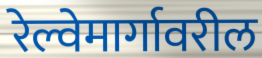
रेल्वेमार्गावरील